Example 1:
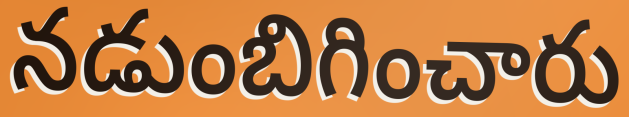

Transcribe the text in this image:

నడుంబిగించారు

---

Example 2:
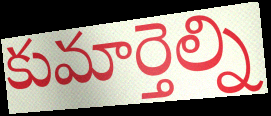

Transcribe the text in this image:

కుమార్తెల్ని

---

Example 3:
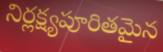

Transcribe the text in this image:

నిర్లక్ష్యపూరితమైన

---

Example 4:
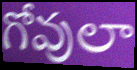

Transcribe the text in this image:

గోవులా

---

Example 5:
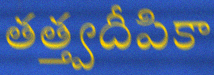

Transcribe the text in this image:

తత్త్వదీపికా